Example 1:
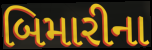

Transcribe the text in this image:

બિમારીના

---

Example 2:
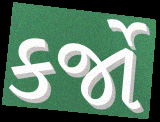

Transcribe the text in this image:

કર્જો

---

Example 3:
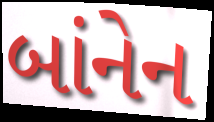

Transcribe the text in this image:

બાંનેન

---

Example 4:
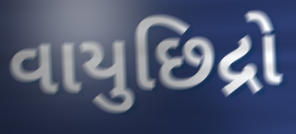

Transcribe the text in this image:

વાયુછિદ્રો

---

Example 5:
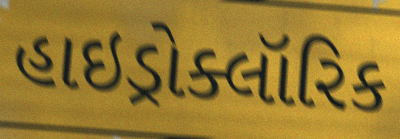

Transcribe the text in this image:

હાઇડ્રોક્લૉરિક